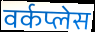
वर्कप्लेस